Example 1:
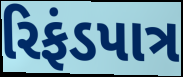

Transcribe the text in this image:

રિફંડપાત્ર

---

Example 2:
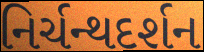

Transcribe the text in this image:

નિર્ચન્થદર્શન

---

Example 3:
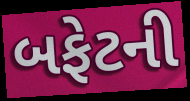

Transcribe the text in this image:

બફેટની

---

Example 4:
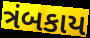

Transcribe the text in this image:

ત્રંબકાય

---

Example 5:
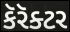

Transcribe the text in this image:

કૅરૅક્ટર